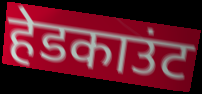
हेडकाउंट